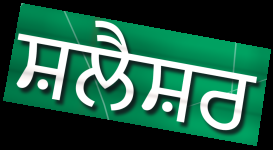
ਸ਼ਲੈਸ਼ਰ